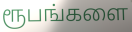
ரூபங்களை